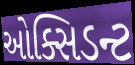
ઓક્સિડન્ટ